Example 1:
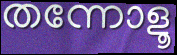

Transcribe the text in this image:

തന്നോളൂ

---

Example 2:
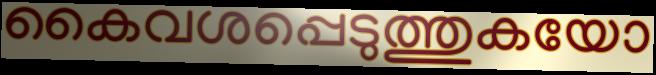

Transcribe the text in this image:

കൈവശപ്പെടുത്തുകയോ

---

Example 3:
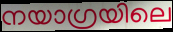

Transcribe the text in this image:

നയാഗ്രയിലെ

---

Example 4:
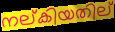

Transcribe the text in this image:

നല്കിയതില്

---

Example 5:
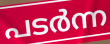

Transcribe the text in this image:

പടർന്ന